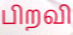
பிறவி